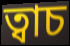
ত্বাচ